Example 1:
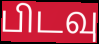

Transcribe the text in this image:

பிடவு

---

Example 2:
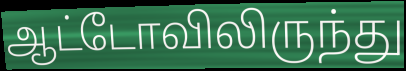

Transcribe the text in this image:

ஆட்டோவிலிருந்து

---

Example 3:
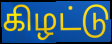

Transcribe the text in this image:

கிழட்டு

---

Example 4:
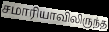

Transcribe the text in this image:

சமாரியாவிலிருந்த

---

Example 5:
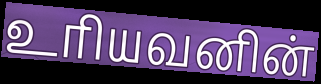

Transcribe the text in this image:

உரியவனின்